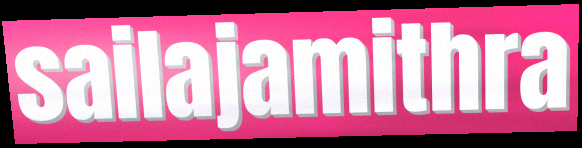
sailajamithra